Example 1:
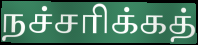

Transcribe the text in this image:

நச்சரிக்கத்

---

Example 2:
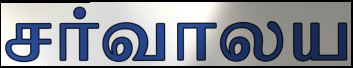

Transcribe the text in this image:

சர்வாலய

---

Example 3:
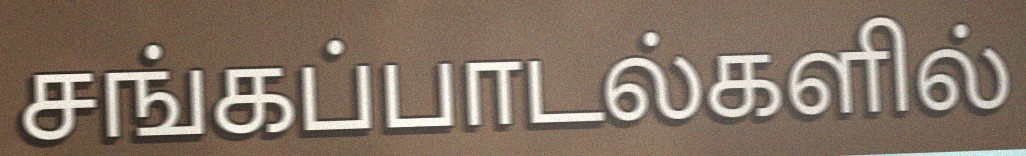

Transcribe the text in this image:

சங்கப்பாடல்களில்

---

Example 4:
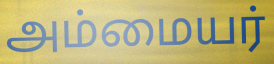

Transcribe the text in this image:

அம்மையர்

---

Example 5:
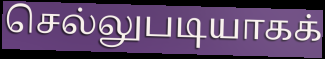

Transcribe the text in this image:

செல்லுபடியாகக்